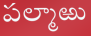
పల్మాఱు